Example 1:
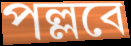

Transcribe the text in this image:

পল্লবে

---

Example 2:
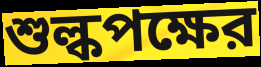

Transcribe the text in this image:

শুল্কপক্ষের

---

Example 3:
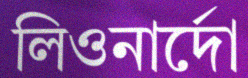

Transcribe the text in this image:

লিওনার্দো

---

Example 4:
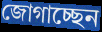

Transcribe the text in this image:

জোগাচ্ছেন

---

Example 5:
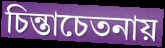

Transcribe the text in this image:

চিন্তাচেতনায়